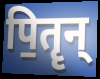
पि॒तॄन्